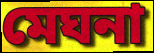
মেঘনা